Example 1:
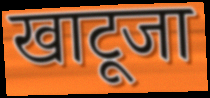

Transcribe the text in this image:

खाटूजा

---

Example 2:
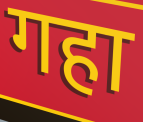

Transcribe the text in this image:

गहा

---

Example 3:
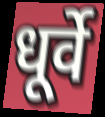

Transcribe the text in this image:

धूर्वे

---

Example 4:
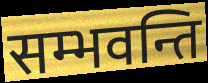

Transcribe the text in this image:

सम्भवन्ति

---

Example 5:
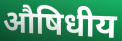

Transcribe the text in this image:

औषिधीय